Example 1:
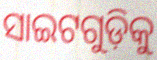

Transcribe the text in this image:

ସାଇଟଗୁଡ଼ିକୁ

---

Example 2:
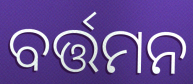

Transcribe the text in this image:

ବର୍ତ୍ତମନ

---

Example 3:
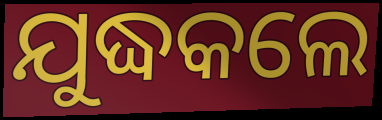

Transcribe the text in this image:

ଯୁଦ୍ଧକଲେ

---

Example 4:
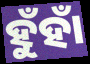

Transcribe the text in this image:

ହୁଁହାଁ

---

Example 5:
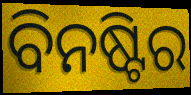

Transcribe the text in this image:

ବିନଷ୍ଟିର